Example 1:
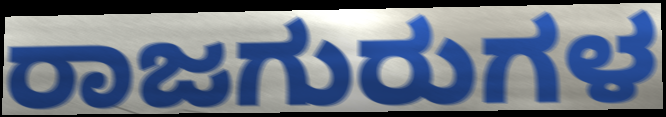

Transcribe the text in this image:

ರಾಜಗುರುಗಳ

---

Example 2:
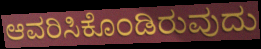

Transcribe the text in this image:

ಆವರಿಸಿಕೊಂಡಿರುವುದು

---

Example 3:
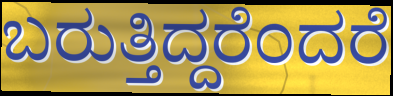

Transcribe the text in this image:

ಬರುತ್ತಿದ್ದರೆಂದರೆ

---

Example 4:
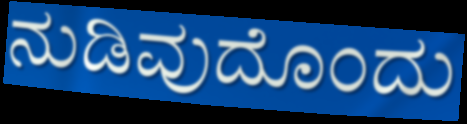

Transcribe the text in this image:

ನುಡಿವುದೊಂದು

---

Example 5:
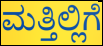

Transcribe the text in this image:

ಮತ್ತಿಲ್ಲಿಗೆ